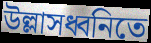
উল্লাসধ্বনিতে